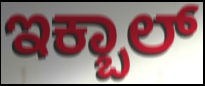
ಇಕ್ಬಾಲ್